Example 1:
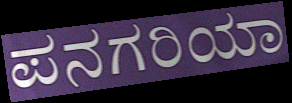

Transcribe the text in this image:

ಪನಗರಿಯಾ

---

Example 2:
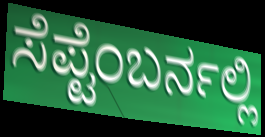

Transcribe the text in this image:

ಸೆಪ್ಟೆಂಬರ್ನಲ್ಲಿ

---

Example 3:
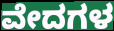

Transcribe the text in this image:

ವೇದಗಳ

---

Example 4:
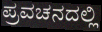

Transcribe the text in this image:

ಪ್ರವಚನದಲ್ಲಿ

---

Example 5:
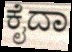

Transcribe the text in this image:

ಕೈದಾ